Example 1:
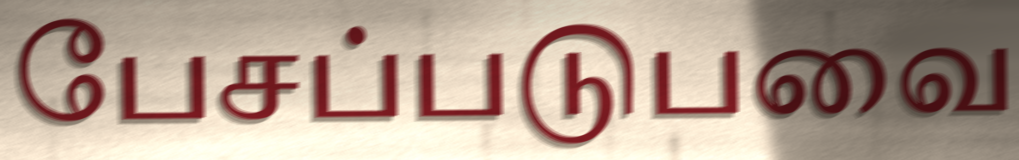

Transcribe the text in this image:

பேசப்படுபவை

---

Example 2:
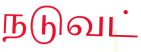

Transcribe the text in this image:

நடுவட்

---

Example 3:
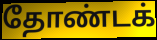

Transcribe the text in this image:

தோண்டக்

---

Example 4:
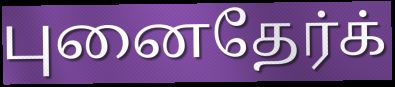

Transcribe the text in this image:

புனைதேர்க்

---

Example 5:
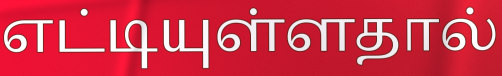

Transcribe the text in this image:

எட்டியுள்ளதால்